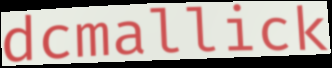
dcmallick